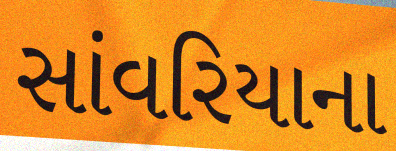
સાંવરિયાના